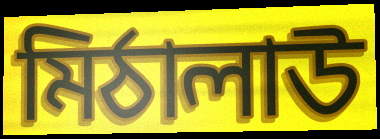
মিঠালাউ